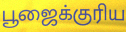
பூஜைக்குரிய